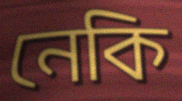
নেকি